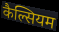
कैल्सियम